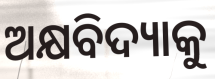
ଅକ୍ଷବିଦ୍ୟାକୁ